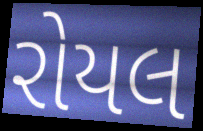
રોયલ